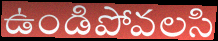
ఉండిపోవలసి